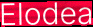
Elodea